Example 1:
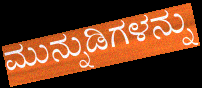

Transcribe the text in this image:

ಮುನ್ನುಡಿಗಳನ್ನು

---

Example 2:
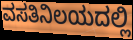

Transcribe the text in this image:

ವಸತಿನಿಲಯದಲ್ಲಿ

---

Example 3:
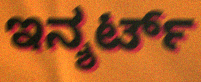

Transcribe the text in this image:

ಇನ್ಶರ್ಟ್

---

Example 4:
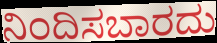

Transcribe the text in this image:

ನಿಂದಿಸಬಾರದು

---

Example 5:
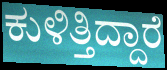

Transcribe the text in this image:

ಕುಳಿತ್ತಿದ್ದಾರೆ